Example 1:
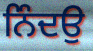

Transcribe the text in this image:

ਨਿੰਦਉ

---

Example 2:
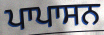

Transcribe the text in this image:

ਪਾਪਾਸਨ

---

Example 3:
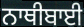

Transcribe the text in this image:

ਨਾਥੀਬਾਈ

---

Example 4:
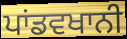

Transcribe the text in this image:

ਪਾਂਡਵਖਾਨੀ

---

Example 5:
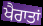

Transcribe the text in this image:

ਖੈਰਾਤਾਂ